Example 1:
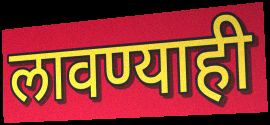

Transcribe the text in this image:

लावण्याही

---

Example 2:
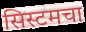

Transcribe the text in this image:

सिस्टमचा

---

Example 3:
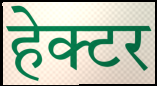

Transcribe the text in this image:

हेक्‍टर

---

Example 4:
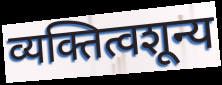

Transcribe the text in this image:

व्यक्तित्वशून्य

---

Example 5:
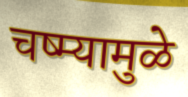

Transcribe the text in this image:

चष्म्यामुळे